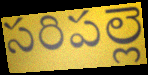
సరిపల్లె